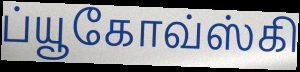
ப்யூகோவ்ஸ்கி